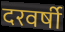
दरवर्षी